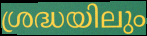
ശ്രദ്ധയിലും